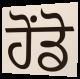
ਹੋਂਡੋ